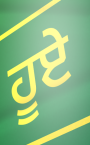
ਹੂਏ